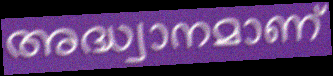
അദ്ധ്വാനമാണ്